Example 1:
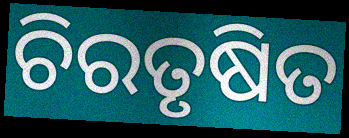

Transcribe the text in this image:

ଚିରତୃଷିତ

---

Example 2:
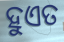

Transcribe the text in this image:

ହୁଏତ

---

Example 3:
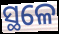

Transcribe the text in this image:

ସ୍ଥଳେ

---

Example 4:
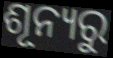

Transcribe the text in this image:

ଶୂନ୍ୟରୁ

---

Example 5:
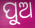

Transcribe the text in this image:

ପୁଅ